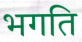
भगति